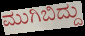
ಮುಗಿಬಿದ್ದು